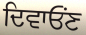
ਦਿਵਾਓੰਣ